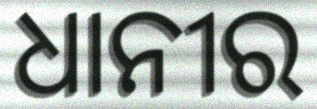
ଧାନୀର